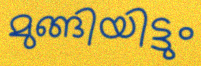
മുങ്ങിയിട്ടും